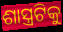
ଶାସ୍ତ୍ରଟିକୁ